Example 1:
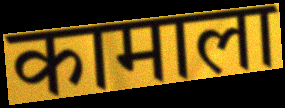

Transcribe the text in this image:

कामाला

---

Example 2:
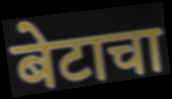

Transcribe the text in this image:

बेटाचा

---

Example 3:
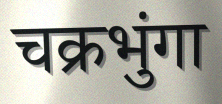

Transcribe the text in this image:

चक्रभुंगा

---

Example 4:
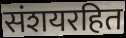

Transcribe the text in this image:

संशयरहित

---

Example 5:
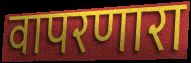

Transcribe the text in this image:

वापरणारा